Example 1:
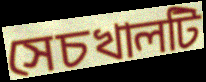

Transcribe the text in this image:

সেচখালটি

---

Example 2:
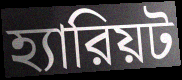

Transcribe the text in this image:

হ্যারিয়ট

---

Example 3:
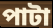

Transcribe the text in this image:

পাটা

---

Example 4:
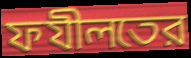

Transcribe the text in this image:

ফযীলতের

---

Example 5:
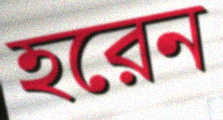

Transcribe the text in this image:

হরেন